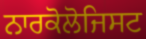
ਨਾਰਕੋਲੋਜਿਸਟ